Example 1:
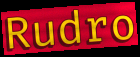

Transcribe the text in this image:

Rudro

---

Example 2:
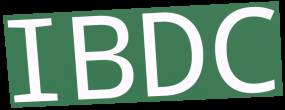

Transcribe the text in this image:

IBDC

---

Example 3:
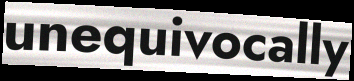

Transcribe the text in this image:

unequivocally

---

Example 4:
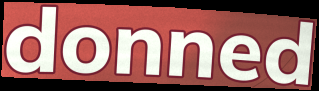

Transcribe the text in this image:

donned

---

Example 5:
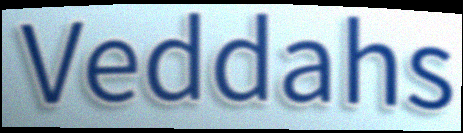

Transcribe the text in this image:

Veddahs